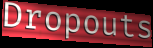
Dropouts